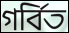
গর্বিত